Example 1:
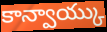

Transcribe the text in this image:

కాన్వాయ్కు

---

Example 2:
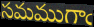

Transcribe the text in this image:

సమముగాఁ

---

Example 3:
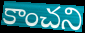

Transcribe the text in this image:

కాంచని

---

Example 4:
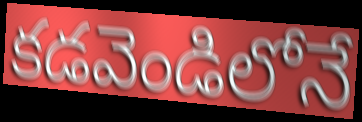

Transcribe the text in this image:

కడవెండిలోనే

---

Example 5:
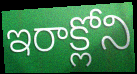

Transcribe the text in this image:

ఇరాక్లోని